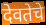
देवतेचे